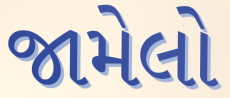
જામેલો